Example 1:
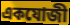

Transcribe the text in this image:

একযোজী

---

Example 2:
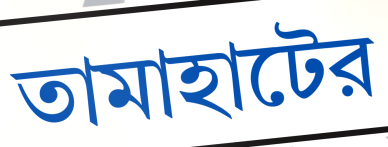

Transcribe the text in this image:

তামাহাটের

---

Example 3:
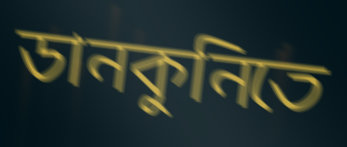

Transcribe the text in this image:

ডানকুনিতে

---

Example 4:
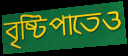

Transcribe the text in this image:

বৃষ্টিপাতেও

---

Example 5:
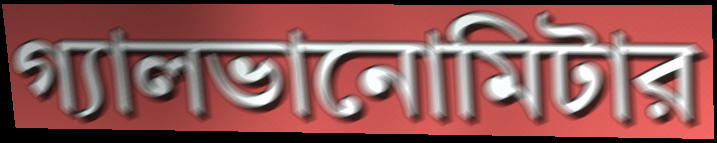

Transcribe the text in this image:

গ্যালভানোমিটার